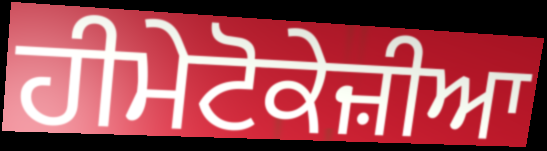
ਹੀਮੇਟੋਕੇਜ਼ੀਆ